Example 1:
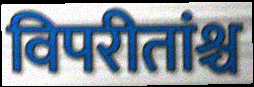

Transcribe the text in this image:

विपरीतांश्च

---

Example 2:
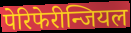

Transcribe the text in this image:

पेरिफेरीन्जियल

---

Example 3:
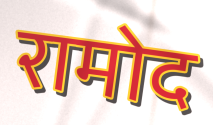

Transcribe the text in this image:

रामोद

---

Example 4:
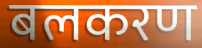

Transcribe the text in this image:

बलकरण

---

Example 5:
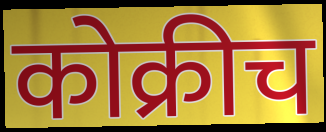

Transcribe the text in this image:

कोक्रीच